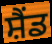
ਸ਼ੈਂਡ